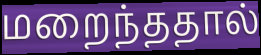
மறைந்ததால்